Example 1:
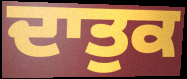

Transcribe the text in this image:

ਦਾਤੁਕ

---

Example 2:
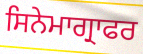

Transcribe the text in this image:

ਸਿਨੇਮਾਗ੍ਰਾਫਰ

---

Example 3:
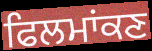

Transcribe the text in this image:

ਫਿਲਮਾਂਕਣ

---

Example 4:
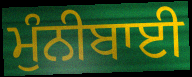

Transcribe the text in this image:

ਮੁੰਨੀਬਾਈ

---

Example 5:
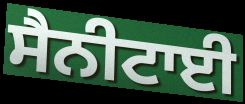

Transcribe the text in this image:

ਸੈਨੀਟਾਈ